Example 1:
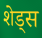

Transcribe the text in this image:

शेड्स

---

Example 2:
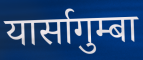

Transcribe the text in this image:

यार्सागुम्बा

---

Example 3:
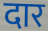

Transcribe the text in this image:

दार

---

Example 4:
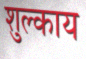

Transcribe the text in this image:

शुल्काय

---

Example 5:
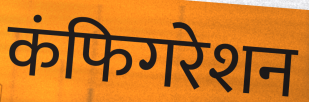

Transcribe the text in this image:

कंफिगरेशन